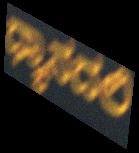
ಧ್ಯಾನದಲಿ